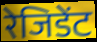
रेजिडेंट